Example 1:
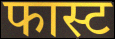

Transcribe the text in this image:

फास्ट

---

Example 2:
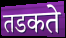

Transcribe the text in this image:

तडकते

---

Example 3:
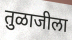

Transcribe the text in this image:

तुळाजीला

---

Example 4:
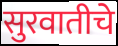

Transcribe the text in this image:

सुरवातीचे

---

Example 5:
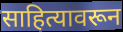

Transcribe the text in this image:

साहित्यावरून